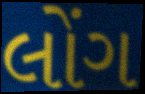
લોંગ